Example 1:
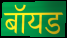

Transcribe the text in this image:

बॉयड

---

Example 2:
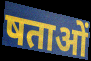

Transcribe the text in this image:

षताओं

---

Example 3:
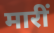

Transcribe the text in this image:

मारीं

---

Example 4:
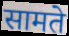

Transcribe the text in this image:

सामते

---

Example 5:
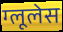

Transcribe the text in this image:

ग्लूलेस